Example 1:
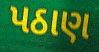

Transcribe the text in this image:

પઠાણ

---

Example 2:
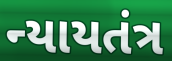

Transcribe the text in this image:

ન્યાયતંત્ર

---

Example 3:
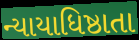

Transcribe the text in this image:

ન્યાયાધિષ્ઠાતા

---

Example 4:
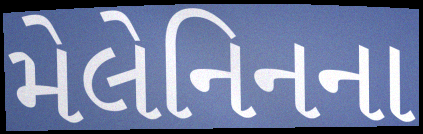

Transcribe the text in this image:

મેલેનિનના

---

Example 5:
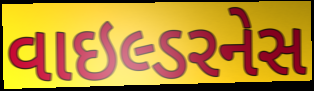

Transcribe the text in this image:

વાઇલ્ડરનેસ